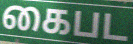
கைபட